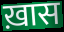
ख़ास